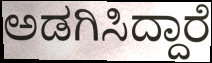
ಅಡಗಿಸಿದ್ದಾರೆ